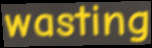
wasting